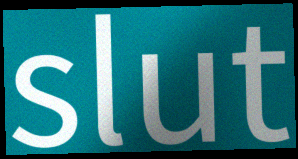
slut